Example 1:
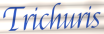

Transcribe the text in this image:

Trichuris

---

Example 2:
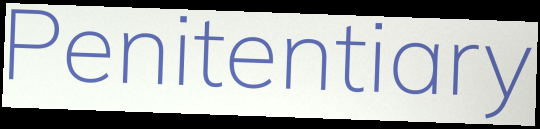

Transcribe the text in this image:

Penitentiary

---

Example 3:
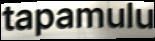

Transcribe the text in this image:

tapamulu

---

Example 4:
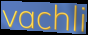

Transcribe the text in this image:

vachli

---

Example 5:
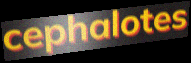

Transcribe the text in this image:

cephalotes